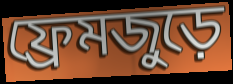
ফ্রেমজুড়ে